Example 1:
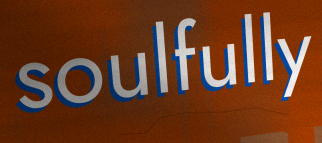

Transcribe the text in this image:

soulfully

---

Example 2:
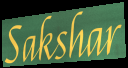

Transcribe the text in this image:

Sakshar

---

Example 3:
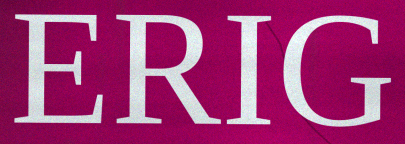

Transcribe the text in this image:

ERIG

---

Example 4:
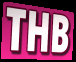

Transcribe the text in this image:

THB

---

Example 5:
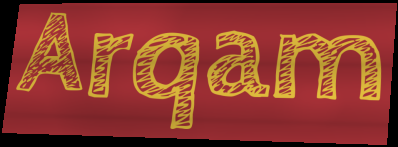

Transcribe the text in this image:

Arqam